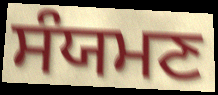
ਸੰਯਮਣ